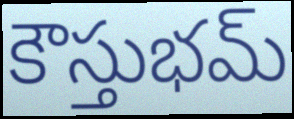
కౌస్తుభమ్